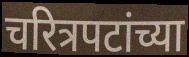
चरित्रपटांच्या